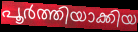
പൂർത്തിയാക്കിയ